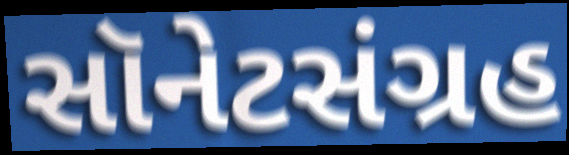
સૉનેટસંગ્રહ